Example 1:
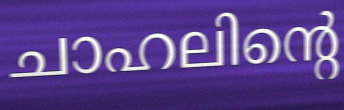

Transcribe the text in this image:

ചാഹലിന്റെ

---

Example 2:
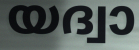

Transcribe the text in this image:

യദ്വാ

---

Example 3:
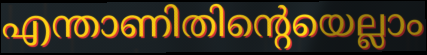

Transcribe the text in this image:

എന്താണിതിന്റെയെല്ലാം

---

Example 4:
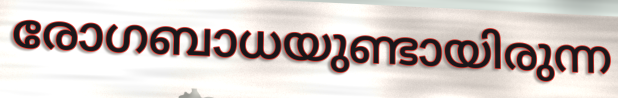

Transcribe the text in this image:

രോഗബാധയുണ്ടായിരുന്ന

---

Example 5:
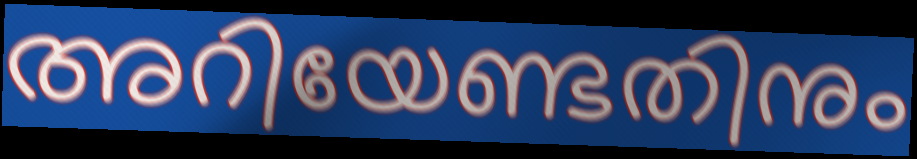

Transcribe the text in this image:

അറിയേണ്ടതിനും